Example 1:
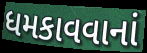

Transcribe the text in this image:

ધમકાવવાનાં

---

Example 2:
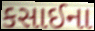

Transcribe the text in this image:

કસાઈના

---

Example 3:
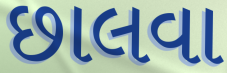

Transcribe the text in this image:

છાલવા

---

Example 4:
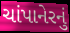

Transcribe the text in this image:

ચાંપાનેરનું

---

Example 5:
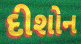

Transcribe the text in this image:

દીશોન